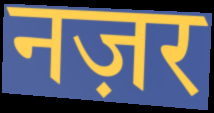
नज़र